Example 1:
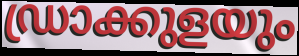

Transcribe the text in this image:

ഡ്രാക്കുളയും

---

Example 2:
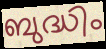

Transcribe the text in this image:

ബുദ്ധിം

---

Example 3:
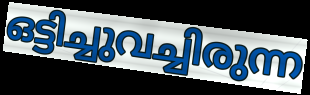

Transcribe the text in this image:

ഒട്ടിച്ചുവച്ചിരുന്ന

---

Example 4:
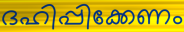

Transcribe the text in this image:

ദഹിപ്പിക്കേണം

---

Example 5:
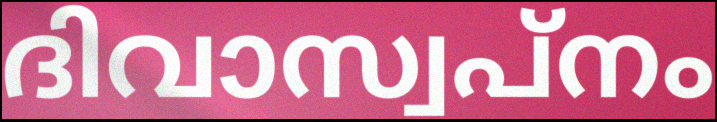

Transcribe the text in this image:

ദിവാസ്വപ്നം